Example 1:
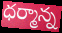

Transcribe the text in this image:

ధర్మాన్న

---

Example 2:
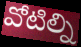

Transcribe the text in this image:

వోటిల్ని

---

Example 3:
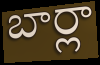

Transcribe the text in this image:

బార్లా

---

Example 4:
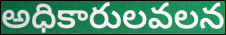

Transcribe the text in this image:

అధికారులవలన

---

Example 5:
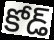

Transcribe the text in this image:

కోడ్